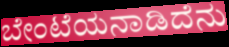
ಬೇಂಟೆಯನಾಡಿದೆನು